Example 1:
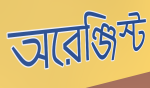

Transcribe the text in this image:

অরেঞ্জিস্ট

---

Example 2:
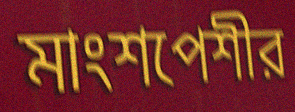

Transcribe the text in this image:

মাংশপেশীর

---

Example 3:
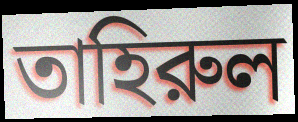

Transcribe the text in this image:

তাহিরুল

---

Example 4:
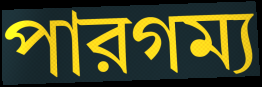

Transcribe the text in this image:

পারগম্য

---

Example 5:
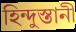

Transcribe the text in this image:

হিন্দুস্তানী